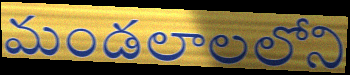
మండలాలలోని